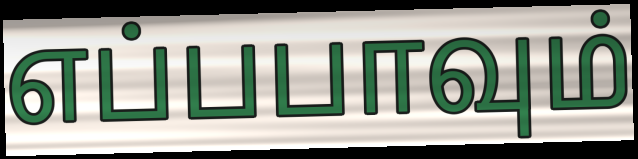
எப்பபாவும்